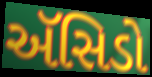
ઍસિડો